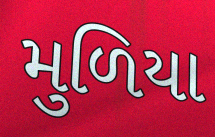
મુળિયા